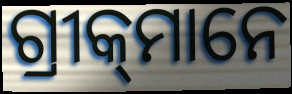
ଗ୍ରୀକ୍‌ମାନେ